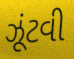
ઝૂંટવી